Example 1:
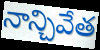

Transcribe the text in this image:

నాన్చివేత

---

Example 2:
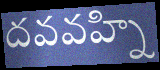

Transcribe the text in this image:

దవవహ్ని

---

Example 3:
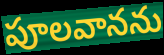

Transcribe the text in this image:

పూలవానను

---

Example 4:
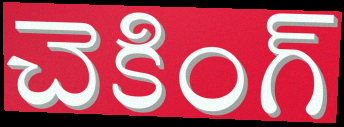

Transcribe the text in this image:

చెకింగ్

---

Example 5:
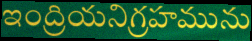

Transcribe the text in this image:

ఇంద్రియనిగ్రహమును